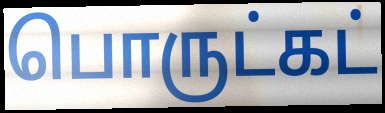
பொருட்கட்